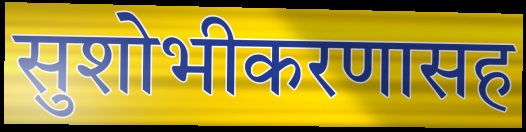
सुशोभीकरणासह